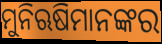
ମୁନିଋଷିମାନଙ୍କର